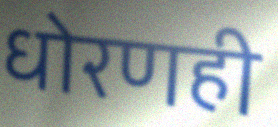
धोरणही